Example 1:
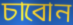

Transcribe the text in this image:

চাবোন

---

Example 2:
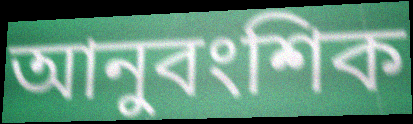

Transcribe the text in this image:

আনুবংশিক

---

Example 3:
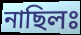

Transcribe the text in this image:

নাছিলঃ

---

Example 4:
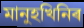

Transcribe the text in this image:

মানুহখিনিৰ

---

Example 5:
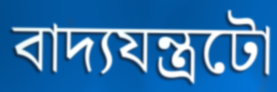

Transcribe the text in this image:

বাদ্যযন্ত্ৰটো